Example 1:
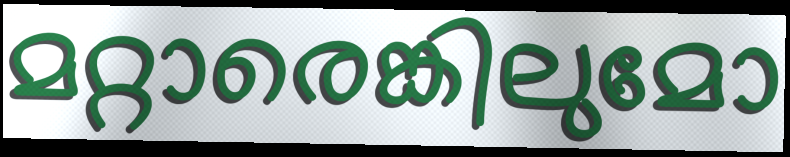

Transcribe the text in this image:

മറ്റാരെങ്കിലുമോ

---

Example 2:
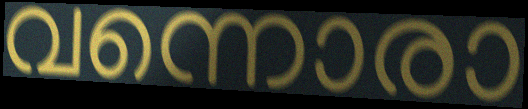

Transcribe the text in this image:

വന്നൊരാ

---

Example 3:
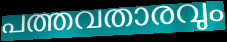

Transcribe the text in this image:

പത്തവതാരവും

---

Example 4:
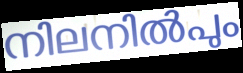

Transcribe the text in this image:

നിലനിൽപും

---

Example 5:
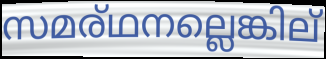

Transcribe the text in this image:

സമര്ഥനല്ലെങ്കില്